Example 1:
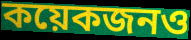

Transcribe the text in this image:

কয়েকজনও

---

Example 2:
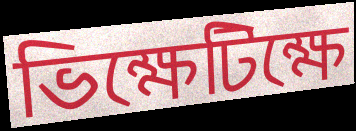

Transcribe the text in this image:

ভিক্ষেটিক্ষে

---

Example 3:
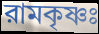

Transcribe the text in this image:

রামকৃষ্ণঃ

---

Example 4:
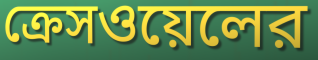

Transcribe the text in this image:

ক্রেসওয়েলের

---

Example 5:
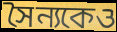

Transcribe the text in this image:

সৈন্যকেও